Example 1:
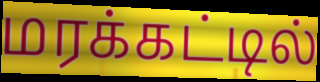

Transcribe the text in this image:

மரக்கட்டில்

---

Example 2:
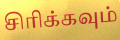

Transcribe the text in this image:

சிரிக்கவும்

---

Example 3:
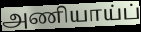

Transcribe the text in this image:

அணியாய்ப்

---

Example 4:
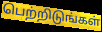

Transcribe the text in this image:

பெற்றிடுங்கள்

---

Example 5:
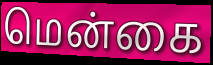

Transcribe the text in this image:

மென்கை